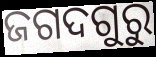
ଜଗଦଗୁରୁ